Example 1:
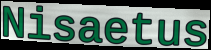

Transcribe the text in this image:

Nisaetus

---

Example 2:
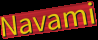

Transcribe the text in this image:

Navami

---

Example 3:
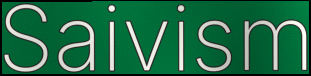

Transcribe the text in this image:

Saivism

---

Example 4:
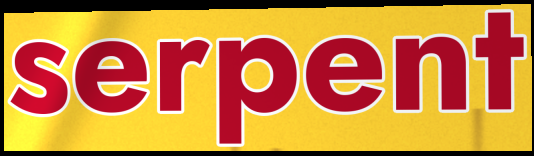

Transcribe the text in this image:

serpent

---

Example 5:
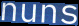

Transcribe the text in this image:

nuns